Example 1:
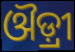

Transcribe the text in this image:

ଔଡ଼୍ରୀ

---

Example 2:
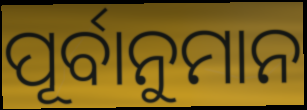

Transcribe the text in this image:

ପୂର୍ବାନୁମାନ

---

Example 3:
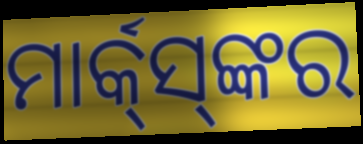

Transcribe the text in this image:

ମାର୍କ୍‌ସ୍‌ଙ୍କର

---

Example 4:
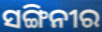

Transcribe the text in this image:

ସଙ୍ଗିନୀର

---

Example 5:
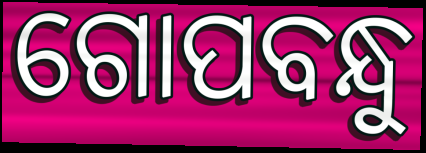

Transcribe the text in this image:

ଗୋପବନ୍ଧୁ